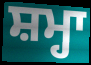
ਸ਼ਮ੍ਹਾ